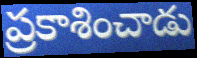
ప్రకాశించాడు